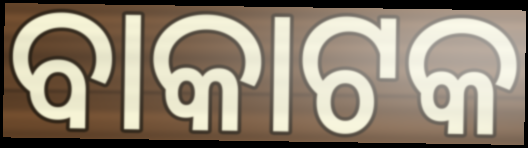
ବାକାଟକ